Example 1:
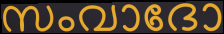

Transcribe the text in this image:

സംവാദോ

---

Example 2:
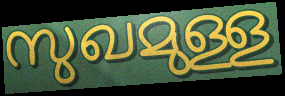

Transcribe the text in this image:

സുഖമുള്ള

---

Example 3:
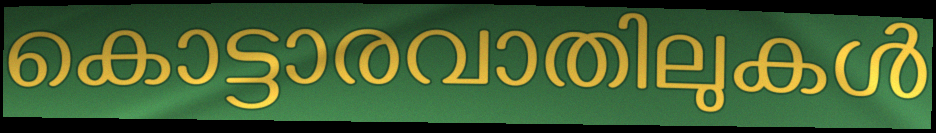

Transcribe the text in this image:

കൊട്ടാരവാതിലുകൾ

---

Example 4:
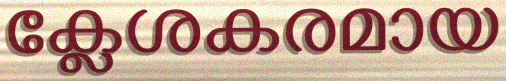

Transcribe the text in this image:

ക്ലേശകരമായ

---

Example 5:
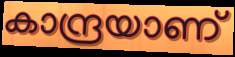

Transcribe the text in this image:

കാന്ദ്രയാണ്